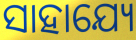
ସାହାଯ୍ୟେ